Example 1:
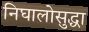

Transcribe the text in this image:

निघालोसुद्धा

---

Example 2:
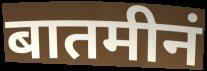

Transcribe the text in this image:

बातमीनं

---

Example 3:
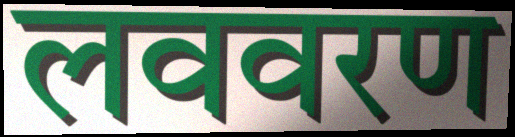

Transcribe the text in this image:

लववरण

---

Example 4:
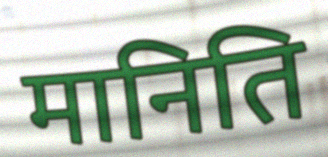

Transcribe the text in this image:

मानिति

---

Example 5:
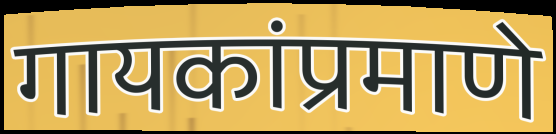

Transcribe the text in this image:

गायकांप्रमाणे